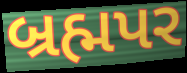
બ્રહ્મપર